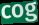
cog